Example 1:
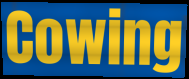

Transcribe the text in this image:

Cowing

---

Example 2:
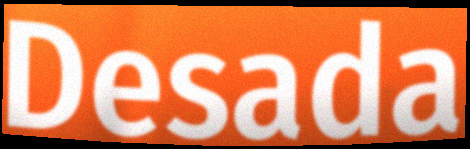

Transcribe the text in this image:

Desada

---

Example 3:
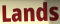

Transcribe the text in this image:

Lands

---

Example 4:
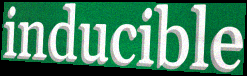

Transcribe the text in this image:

inducible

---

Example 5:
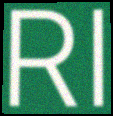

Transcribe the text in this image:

Rl